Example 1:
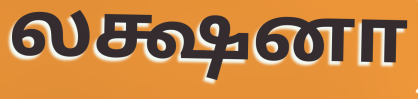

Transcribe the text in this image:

லக்ஷனா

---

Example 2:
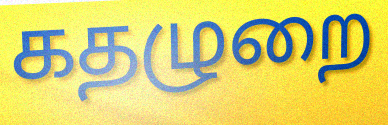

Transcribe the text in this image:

கதழுறை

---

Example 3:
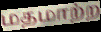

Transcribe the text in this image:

மதமாற்ற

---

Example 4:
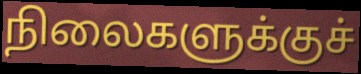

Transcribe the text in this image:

நிலைகளுக்குச்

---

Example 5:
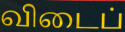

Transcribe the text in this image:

விடைப்